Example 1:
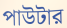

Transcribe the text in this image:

পাউটার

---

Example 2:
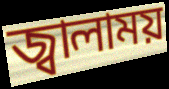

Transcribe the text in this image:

জ্বালাময়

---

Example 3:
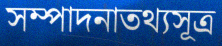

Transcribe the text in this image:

সম্পাদনাতথ্যসূত্র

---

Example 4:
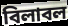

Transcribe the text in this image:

বিলাবল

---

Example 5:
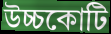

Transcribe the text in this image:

উচ্চকোটি